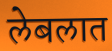
लेबलात